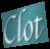
Clot